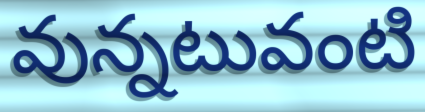
వున్నటువంటి